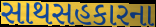
સાથસહકારના